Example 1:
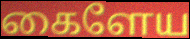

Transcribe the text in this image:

கைளேய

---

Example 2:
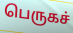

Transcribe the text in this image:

பெருகச்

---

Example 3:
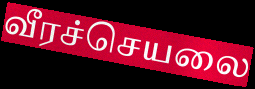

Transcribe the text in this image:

வீரச்செயலை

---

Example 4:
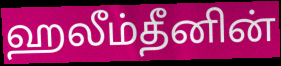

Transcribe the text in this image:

ஹலீம்தீனின்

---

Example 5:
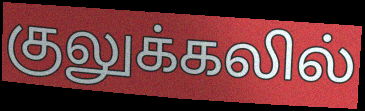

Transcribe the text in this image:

குலுக்கலில்